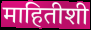
माहितीशी